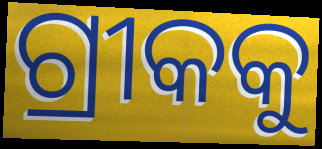
ଗ୍ରୀକକୁ